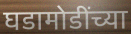
घडामोडींच्या